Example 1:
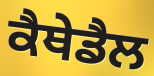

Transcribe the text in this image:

ਕੈਥੇਡੈਲ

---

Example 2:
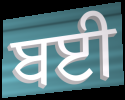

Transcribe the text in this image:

ਬਈ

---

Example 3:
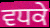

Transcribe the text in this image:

ਵਧਕੇ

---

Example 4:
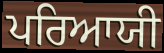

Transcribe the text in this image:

ਪਰਿਆਯੀ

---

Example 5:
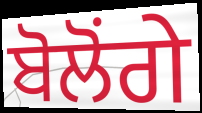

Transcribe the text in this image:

ਬੋਲੋਂਗੇ